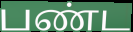
பண்ட